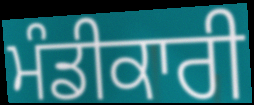
ਮੰਡੀਕਾਰੀ